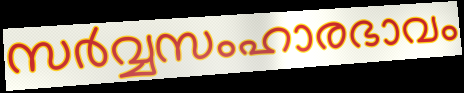
സർവ്വസംഹാരഭാവം